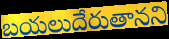
బయలుదేరుతానని